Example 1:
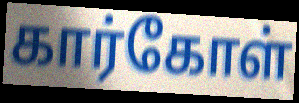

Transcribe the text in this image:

கார்கோள்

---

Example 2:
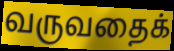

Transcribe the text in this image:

வருவதைக்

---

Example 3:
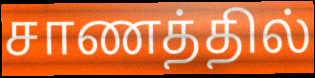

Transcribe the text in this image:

சாணத்தில்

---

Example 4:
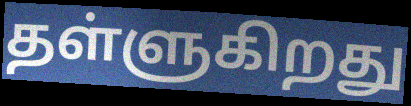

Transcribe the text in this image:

தள்ளுகிறது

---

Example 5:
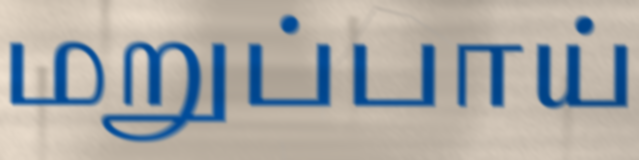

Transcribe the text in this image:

மறுப்பாய்